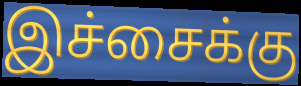
இச்சைக்கு